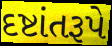
દષ્ટાંતરૂપે